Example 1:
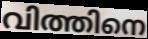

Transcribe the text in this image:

വിത്തിനെ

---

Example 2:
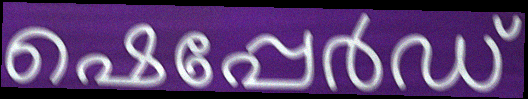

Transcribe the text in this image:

ഷെപ്പേർഡ്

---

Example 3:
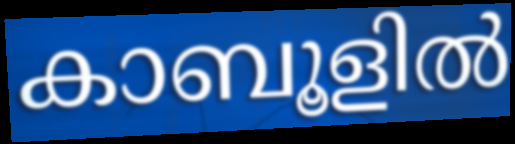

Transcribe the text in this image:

കാബൂളിൽ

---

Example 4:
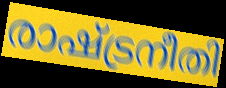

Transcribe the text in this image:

രാഷ്ട്രനീതി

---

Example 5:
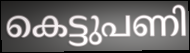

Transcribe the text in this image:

കെട്ടുപണി